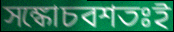
সঙ্কোচবশতঃই